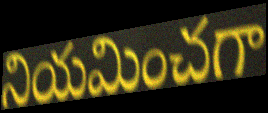
నియమించగా